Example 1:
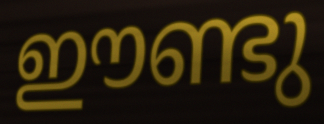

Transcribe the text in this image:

ഈണ്ടു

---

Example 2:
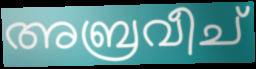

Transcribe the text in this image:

അബ്രവീച്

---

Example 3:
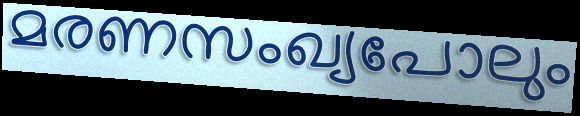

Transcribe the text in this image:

മരണസംഖ്യപോലും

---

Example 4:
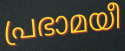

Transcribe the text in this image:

പ്രഭാമയീ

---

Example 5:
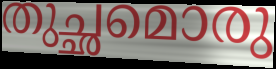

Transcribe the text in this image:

തുച്ഛമൊരു